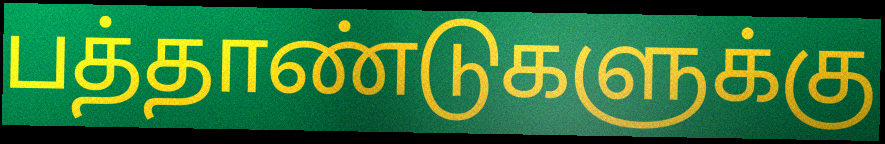
பத்தாண்டுகளுக்கு